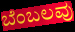
ಬೆಂಬಲವು